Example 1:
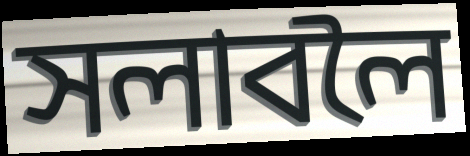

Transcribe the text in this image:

সলাবলৈ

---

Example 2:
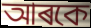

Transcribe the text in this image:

আৰকে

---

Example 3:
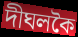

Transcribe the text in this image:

দীঘলকৈ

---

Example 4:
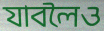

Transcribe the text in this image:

যাবলৈও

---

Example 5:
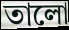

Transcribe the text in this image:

তালো